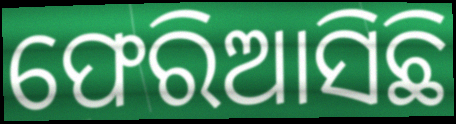
ଫେରିଆସିଛି